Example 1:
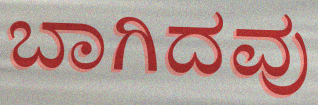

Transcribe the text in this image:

ಬಾಗಿದವು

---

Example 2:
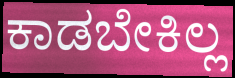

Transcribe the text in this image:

ಕಾಡಬೇಕಿಲ್ಲ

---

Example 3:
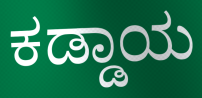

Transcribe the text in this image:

ಕಡ್ಡಾಯ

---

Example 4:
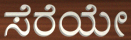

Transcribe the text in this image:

ಸೆರೆಯೇ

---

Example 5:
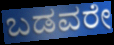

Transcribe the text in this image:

ಬಡವರೇ